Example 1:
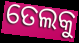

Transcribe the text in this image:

ତେଲକୁ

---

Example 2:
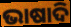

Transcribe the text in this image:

ଭାଷାଦି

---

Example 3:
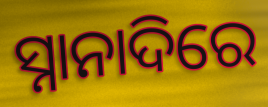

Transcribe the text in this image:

ସ୍ନାନାଦିରେ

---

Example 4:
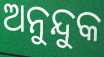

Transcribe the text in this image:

ଅନୁନ୍ଦୁକ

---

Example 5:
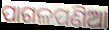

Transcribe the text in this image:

ପାଗଳପଣିଆ